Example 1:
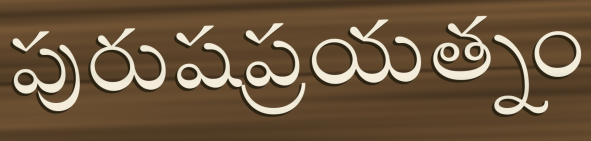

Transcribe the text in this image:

పురుషప్రయత్నం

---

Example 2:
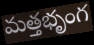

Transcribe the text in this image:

మత్తభృంగ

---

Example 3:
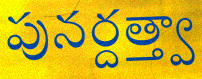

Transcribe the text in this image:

పునర్దత్త్వా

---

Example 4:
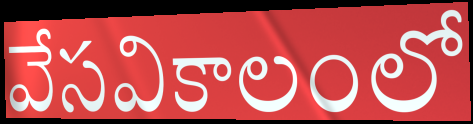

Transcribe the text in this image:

వేసవికాలంలో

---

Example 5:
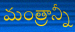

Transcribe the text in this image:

మంత్రాన్నీ